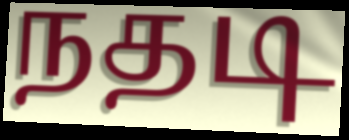
நதடி